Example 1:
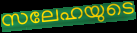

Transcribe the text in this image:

സലേഹയുടെ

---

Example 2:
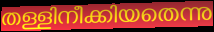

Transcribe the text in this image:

തള്ളിനീക്കിയതെന്നു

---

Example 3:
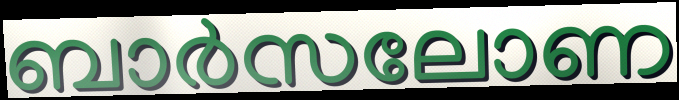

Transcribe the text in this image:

ബാർസലോണ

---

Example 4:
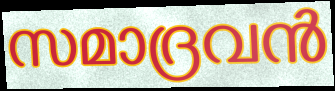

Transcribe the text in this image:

സമാദ്രവൻ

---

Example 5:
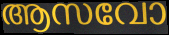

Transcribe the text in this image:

ആസവോ